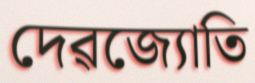
দেৱজ্যোতি